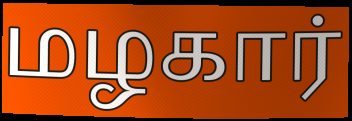
மழகார்